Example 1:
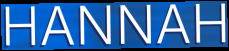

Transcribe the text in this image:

HANNAH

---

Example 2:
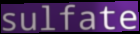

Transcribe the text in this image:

sulfate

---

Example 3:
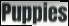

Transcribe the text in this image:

Puppies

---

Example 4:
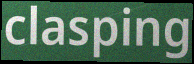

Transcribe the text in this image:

clasping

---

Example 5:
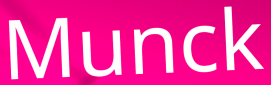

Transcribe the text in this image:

Munck